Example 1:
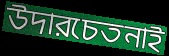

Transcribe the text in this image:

উদারচেতনাই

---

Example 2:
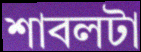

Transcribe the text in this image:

শাবলটা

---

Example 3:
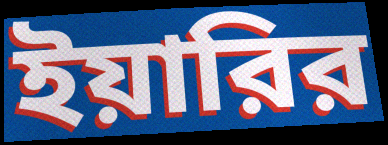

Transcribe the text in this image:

ইয়ারির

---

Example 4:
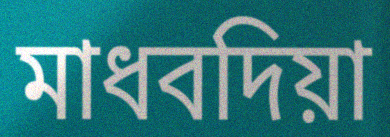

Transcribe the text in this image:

মাধবদিয়া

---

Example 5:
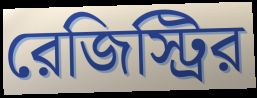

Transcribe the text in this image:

রেজিস্ট্রির